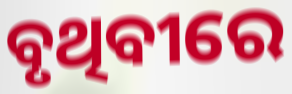
ବୃଥିବୀରେ